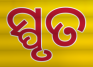
ସ୍ପୃତ